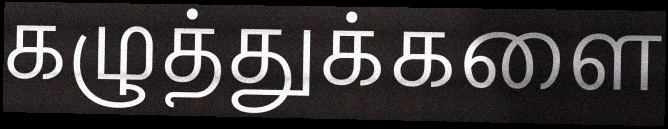
கழுத்துக்களை